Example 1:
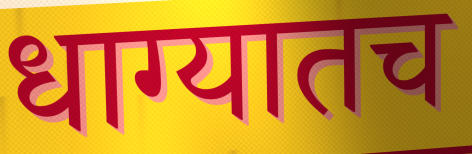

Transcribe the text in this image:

धाग्यातच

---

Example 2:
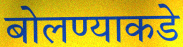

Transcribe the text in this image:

बोलण्याकडे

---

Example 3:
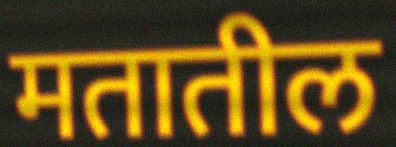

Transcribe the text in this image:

मतातील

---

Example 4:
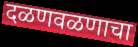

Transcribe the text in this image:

दळणवळणाचा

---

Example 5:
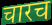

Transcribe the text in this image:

चारच